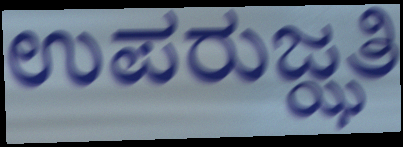
ಉಪರುಜ್ಝತಿ